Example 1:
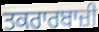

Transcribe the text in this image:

ਤਕਰਾਰਬਾਜ਼ੀ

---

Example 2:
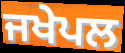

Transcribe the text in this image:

ਜਖੇਪਲ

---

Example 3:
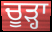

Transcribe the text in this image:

ਚੂੜ੍ਹਾ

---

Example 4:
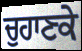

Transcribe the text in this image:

ਚੁਹਾਣਕੇ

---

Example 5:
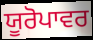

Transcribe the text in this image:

ਯੂਰੋਪਾਵਰ